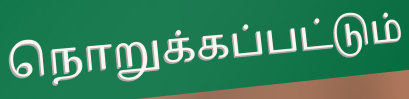
நொறுக்கப்பட்டும்